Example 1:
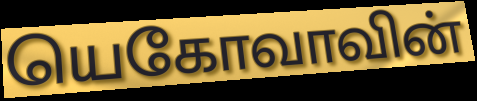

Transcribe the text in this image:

யெகோவாவின்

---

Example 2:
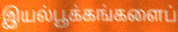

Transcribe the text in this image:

இயல்பூக்கங்களைப்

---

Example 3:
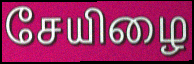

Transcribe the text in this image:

சேயிழை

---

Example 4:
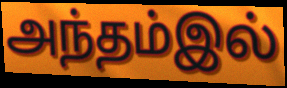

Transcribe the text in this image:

அந்தம்இல்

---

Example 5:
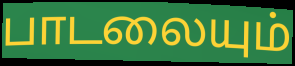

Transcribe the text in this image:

பாடலையும்